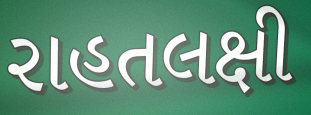
રાહતલક્ષી